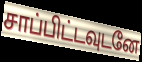
சாப்பிட்டவுடனே